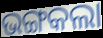
ଭଙ୍ଗକଲା